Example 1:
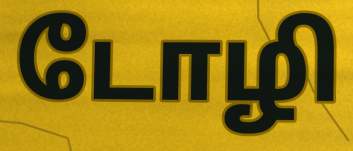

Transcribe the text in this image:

டோழி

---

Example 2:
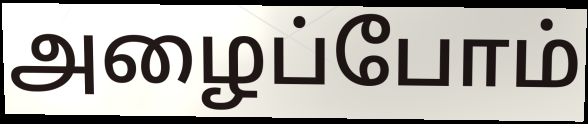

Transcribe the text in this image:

அழைப்போம்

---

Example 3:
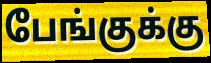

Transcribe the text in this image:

பேங்குக்கு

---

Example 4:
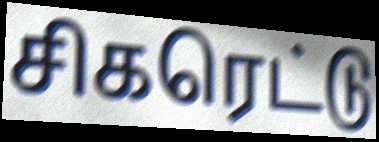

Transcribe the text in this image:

சிகரெட்டு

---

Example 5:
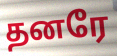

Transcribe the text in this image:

தனரே